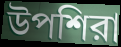
উপশিরা